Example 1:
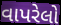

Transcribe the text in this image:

વાપરેલો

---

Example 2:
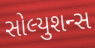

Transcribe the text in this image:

સોલ્યુશન્સ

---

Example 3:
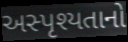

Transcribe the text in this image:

અસ્પૃશ્યતાનો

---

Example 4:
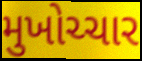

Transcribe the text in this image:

મુખોચ્ચાર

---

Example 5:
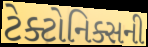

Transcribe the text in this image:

ટેક્ટોનિક્સની